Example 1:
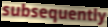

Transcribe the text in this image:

subsequently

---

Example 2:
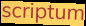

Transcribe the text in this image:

scriptum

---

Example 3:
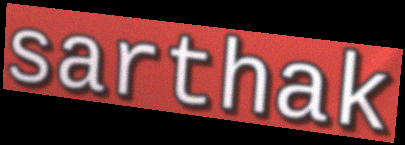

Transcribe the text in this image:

sarthak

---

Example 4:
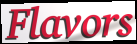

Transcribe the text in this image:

Flavors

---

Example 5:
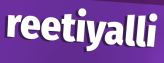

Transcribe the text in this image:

reetiyalli